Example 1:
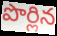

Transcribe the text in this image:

పొర్లిన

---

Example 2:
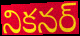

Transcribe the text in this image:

నికనర్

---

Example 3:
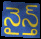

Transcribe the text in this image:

నైన్త్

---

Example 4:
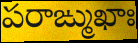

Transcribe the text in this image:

పరాఙ్ముఖాః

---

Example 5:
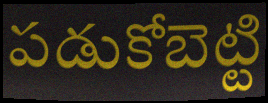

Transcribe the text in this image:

పడుకోబెట్టి